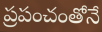
ప్రపంచంతోనే